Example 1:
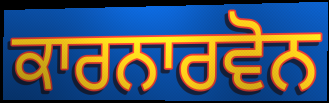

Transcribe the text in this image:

ਕਾਰਨਾਰਵੋਨ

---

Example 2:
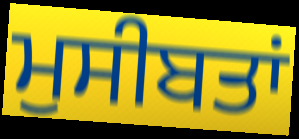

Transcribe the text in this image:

ਮੁਸੀਬਤਾਂ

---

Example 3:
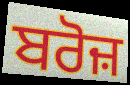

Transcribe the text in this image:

ਬਰੋਜ਼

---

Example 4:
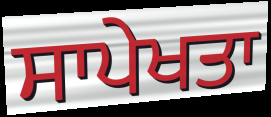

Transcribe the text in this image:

ਸਾਪੇਖਤਾ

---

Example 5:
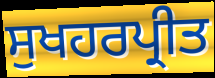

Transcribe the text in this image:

ਸੁਖਹਰਪ੍ਰੀਤ